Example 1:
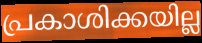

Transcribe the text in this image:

പ്രകാശിക്കയില്ല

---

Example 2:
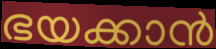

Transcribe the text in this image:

ഭയക്കാൻ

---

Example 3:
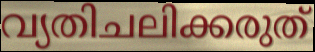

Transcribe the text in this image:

വ്യതിചലിക്കരുത്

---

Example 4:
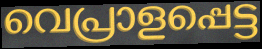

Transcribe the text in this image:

വെപ്രാളപ്പെട്ട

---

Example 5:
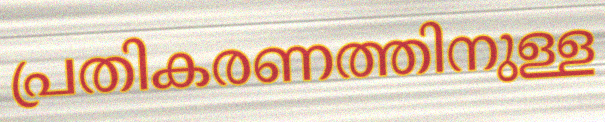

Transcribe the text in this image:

പ്രതികരണത്തിനുള്ള